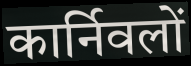
कार्निवलों